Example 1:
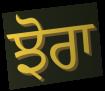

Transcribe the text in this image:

ਝੋਰਾ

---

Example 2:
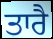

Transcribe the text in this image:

ਤਾਰੈ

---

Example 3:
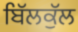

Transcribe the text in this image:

ਬਿੱਲਕੁੱਲ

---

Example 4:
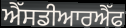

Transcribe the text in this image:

ਐੱਸਡੀਆਰਐੱਫ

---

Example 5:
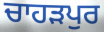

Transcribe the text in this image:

ਚਾਹਡ਼ਪੁਰ